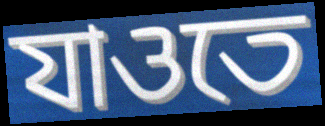
যাওতে